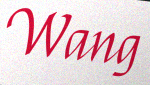
Wang